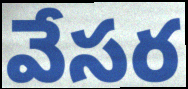
వేసర